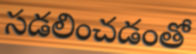
సడలించడంతో